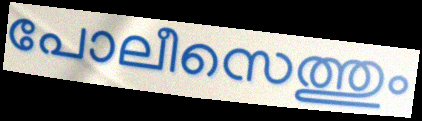
പോലീസെത്തും